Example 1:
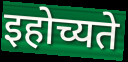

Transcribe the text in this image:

इहोच्यते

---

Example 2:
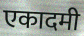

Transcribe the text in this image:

एकादमी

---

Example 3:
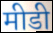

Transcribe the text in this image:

मीडी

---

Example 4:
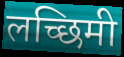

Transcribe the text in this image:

लच्छिमी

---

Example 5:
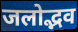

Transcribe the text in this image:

जलोद्भव